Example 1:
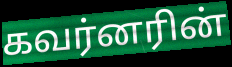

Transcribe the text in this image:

கவர்னரின்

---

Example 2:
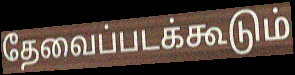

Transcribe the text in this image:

தேவைப்படக்கூடும்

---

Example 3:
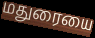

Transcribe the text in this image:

மதுரையை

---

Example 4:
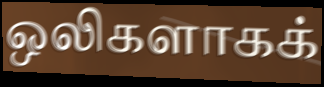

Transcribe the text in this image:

ஒலிகளாகக்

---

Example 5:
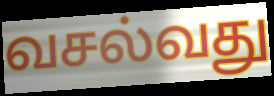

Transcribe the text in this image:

வசல்வது